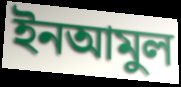
ইনআমুল